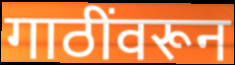
गाठींवरून